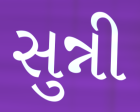
સુન્ની